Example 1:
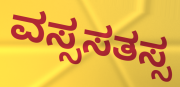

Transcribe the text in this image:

ವಸ್ಸಸತಸ್ಸ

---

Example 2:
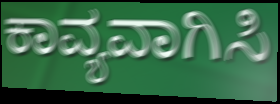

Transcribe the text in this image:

ಕಾವ್ಯವಾಗಿಸಿ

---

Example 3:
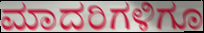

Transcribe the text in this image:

ಮಾದರಿಗಳಿಗೂ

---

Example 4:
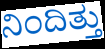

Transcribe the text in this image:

ನಿಂದಿತ್ತು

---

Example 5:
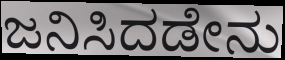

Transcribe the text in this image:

ಜನಿಸಿದಡೇನು